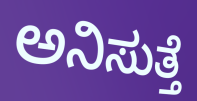
ಅನಿಸುತ್ತೆ